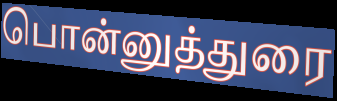
பொன்னுத்துரை